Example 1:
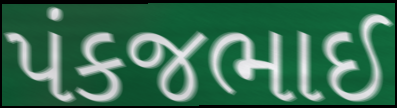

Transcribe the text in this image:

પંકજભાઈ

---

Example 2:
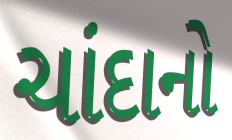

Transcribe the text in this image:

ચાંદાનો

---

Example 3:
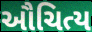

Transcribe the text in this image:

ઔચિત્ય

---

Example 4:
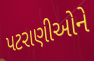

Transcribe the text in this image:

પટરાણીઓને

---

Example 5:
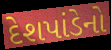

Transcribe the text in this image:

દેશપાંડેનો